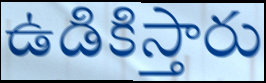
ఉడికిస్తారు